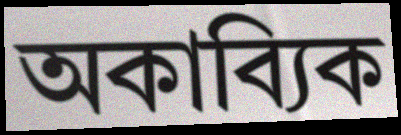
অকাব্যিক